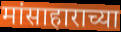
मांसाहाराच्या